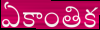
ఏకాంతిక